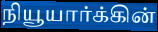
நியூயார்க்கின்